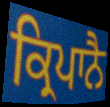
ਕ੍ਰਿਪਾਨੈ